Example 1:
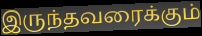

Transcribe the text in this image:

இருந்தவரைக்கும்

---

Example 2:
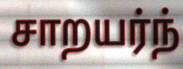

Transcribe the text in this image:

சாறயர்ந்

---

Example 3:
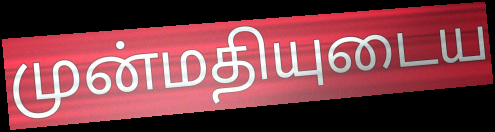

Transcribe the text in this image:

முன்மதியுடைய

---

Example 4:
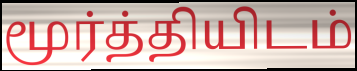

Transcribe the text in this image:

மூர்த்தியிடம்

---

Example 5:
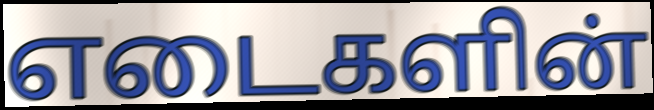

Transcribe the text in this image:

எடைகளின்